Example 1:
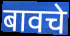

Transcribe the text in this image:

बावचे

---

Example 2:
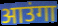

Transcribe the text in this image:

आउंगा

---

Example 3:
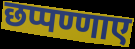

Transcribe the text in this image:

छप्पण्णाए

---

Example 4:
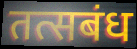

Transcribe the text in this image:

तत्सबंध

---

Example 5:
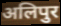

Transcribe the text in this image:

अलिपुर